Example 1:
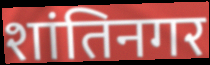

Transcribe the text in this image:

शांतिनगर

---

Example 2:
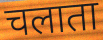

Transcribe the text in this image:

चलाता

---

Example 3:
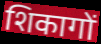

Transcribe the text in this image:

शिकागों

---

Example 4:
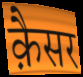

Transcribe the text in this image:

क़ैसर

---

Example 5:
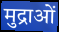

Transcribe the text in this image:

मुद्राओं